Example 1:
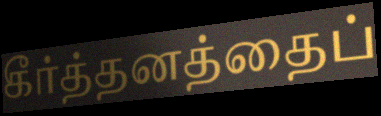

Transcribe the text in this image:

கீர்த்தனத்தைப்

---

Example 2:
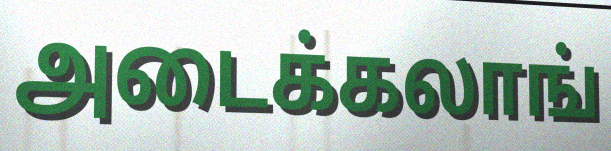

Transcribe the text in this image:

அடைக்கலாங்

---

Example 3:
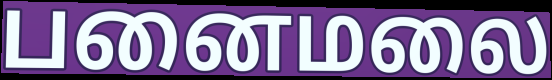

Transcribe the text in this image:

பனைமலை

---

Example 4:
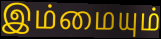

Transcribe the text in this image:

இம்மையும்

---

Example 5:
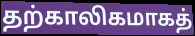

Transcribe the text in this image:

தற்காலிகமாகத்